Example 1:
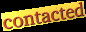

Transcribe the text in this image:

contacted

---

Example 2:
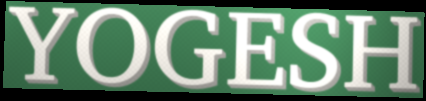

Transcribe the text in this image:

YOGESH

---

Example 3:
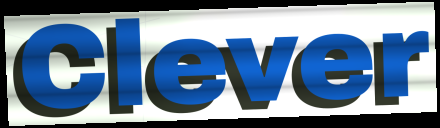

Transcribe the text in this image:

Clever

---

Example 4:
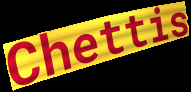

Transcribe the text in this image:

Chettis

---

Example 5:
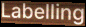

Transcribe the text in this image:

Labelling